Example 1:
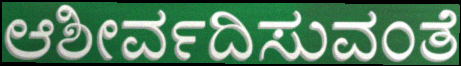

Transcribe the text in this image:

ಆಶೀರ್ವದಿಸುವಂತೆ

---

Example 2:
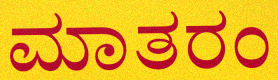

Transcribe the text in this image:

ಮಾತರಂ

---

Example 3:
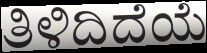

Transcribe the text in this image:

ತಿಳಿದಿದೆಯೆ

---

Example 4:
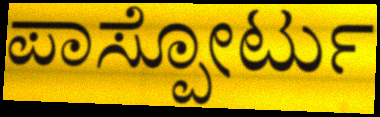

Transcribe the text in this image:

ಪಾಸ್ಪೋರ್ಟು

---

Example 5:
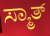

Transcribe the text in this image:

ಸ್ಮಾತ್